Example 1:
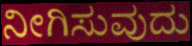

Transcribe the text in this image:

ನೀಗಿಸುವುದು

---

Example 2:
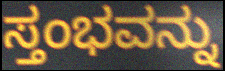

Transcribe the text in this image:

ಸ್ತಂಭವನ್ನು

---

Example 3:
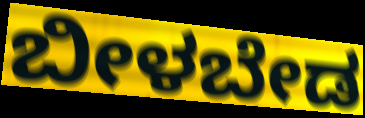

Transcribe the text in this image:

ಬೀಳಬೇಡ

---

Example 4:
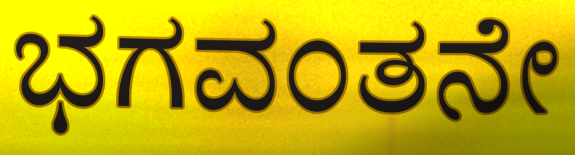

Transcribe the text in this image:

ಭಗವಂತನೇ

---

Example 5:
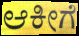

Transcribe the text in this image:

ಆಕೀಗೆ